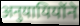
अनुयायियोंने